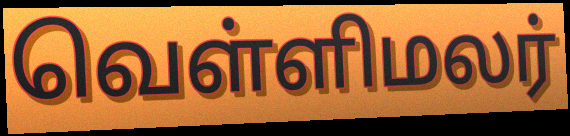
வெள்ளிமலர்